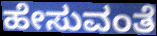
ಹೇಸುವಂತೆ